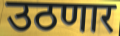
उठणार